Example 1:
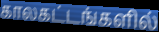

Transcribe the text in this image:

காலகட்டங்களில்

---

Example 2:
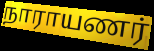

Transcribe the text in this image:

நாராயணர்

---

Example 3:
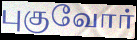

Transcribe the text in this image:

புகுவோர்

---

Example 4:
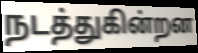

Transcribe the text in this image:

நடத்துகின்றன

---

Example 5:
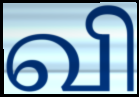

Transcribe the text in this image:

வி